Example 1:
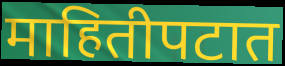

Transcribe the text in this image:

माहितीपटात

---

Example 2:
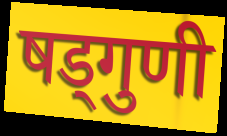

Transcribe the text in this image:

षड्गुणी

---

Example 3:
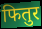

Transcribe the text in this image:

फितुर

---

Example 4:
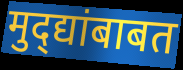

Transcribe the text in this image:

मुद्द्यांबाबत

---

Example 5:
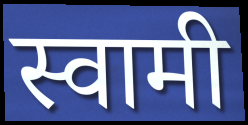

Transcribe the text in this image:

स्वामी